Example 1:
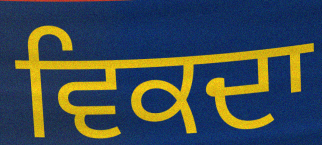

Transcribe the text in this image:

ਵਿਕਦਾ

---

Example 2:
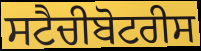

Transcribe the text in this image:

ਸਟੈਚੀਬੋਟਰੀਸ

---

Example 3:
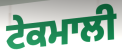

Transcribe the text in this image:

ਟੇਕਮਾਲੀ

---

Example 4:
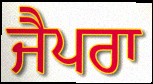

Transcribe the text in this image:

ਜੈਪਰਾ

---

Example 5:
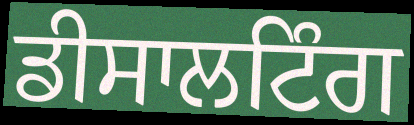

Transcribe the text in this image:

ਡੀਸਾਲਟਿੰਗ